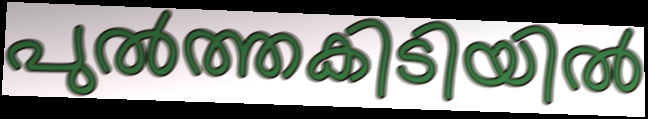
പുൽത്തകിടിയിൽ